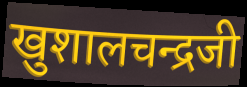
खुशालचन्द्रजी